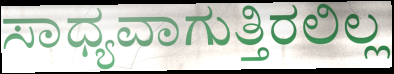
ಸಾಧ್ಯವಾಗುತ್ತಿರಲಿಲ್ಲ